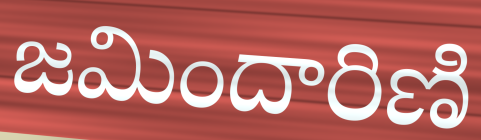
జమిందారిణి